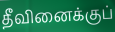
தீவினைக்குப்